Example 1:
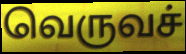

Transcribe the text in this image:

வெருவச்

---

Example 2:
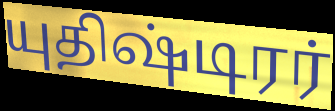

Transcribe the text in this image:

யுதிஷ்டிரர்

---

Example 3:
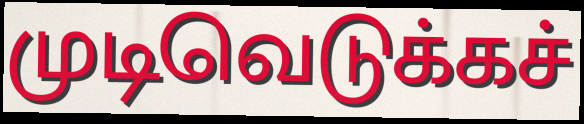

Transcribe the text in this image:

முடிவெடுக்கச்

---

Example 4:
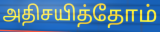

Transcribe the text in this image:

அதிசயித்தோம்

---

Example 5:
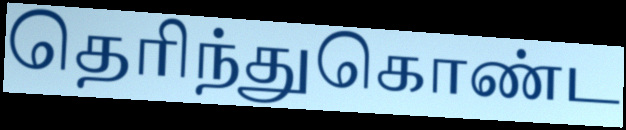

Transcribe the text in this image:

தெரிந்துகொண்ட